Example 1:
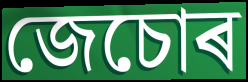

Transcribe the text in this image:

জেচোৰ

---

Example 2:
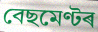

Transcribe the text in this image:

বেছমেণ্টৰ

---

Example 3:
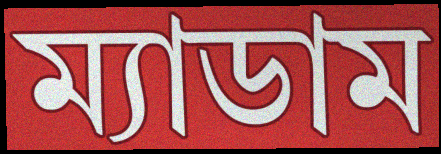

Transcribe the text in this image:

ম্যাডাম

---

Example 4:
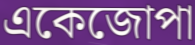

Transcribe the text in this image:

একেজোপা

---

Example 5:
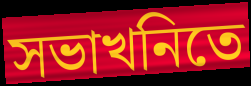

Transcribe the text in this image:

সভাখনিতে